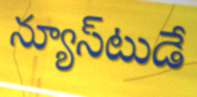
న్యూస్‌టుడే